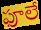
ఫూలే